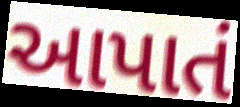
આપાતં